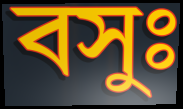
বসুঃ